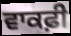
ਵਾਕਫ਼ੀ